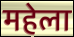
महेला